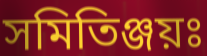
সমিতিঞ্জয়ঃ